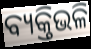
ବ୍ୟକ୍ତିଭଳି